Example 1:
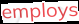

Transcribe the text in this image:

employs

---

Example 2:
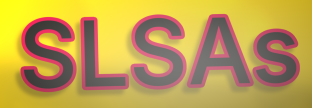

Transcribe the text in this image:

SLSAs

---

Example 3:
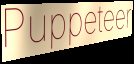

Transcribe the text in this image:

Puppeteer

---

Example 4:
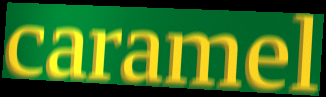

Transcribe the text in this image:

caramel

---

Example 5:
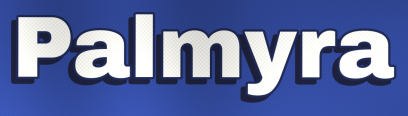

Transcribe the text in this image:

Palmyra